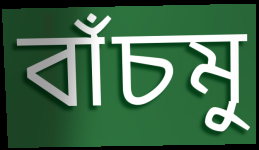
বাঁচমু